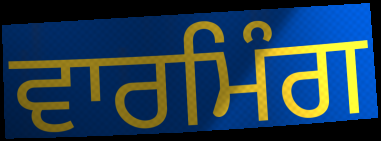
ਵਾਰਮਿੰਗ